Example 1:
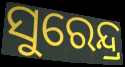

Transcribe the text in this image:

ସୁରେନ୍ଦ୍ର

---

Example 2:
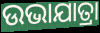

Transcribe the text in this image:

ଉଭାଯାତ୍ରା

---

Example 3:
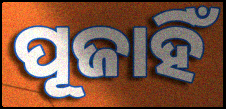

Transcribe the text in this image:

ପୂଜାହିଁ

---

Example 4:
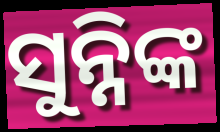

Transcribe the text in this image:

ସୁନ୍ନିଙ୍କ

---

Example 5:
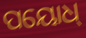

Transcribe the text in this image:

ପୟୋଧ୍